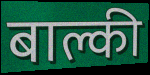
बाल्‍की